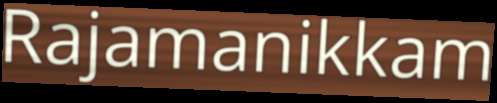
Rajamanikkam